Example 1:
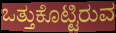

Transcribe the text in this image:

ಒತ್ತುಕೊಟ್ಟಿರುವ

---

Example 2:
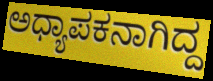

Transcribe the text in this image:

ಅಧ್ಯಾಪಕನಾಗಿದ್ದ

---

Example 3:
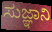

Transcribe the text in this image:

ಸುಜ್ಞಾನಿ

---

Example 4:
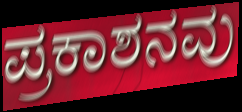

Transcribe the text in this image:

ಪ್ರಕಾಶನವು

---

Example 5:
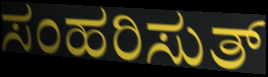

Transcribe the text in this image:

ಸಂಹರಿಸುತ್